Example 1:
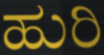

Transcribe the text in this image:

ಹುರಿ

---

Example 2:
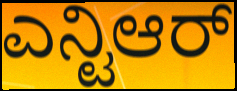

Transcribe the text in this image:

ಎನ್ಟಿಆರ್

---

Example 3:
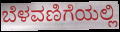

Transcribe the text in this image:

ಬೆಳವಣಿಗೆಯಲ್ಲಿ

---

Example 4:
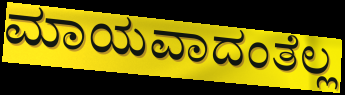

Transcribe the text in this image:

ಮಾಯವಾದಂತೆಲ್ಲ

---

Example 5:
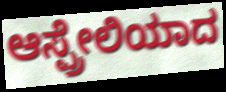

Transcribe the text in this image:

ಆಸ್ಪ್ರೇಲಿಯಾದ